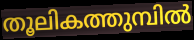
തൂലികത്തുമ്പിൽ